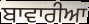
ਬਾਵਾਰੀਆ